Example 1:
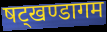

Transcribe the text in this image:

षट्खण्डागम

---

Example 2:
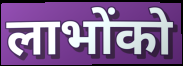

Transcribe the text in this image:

लाभोंको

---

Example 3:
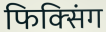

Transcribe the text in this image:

फिक्‍सिंग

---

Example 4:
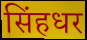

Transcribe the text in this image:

सिंहधर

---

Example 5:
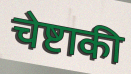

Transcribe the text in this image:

चेष्टाकी